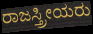
ರಾಜಸ್ತ್ರೀಯರು